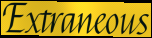
Extraneous